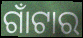
ଗାଁଟାର